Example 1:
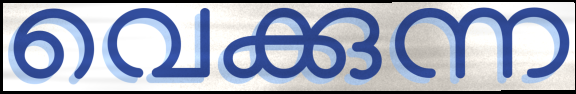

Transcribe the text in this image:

വെക്കുന്ന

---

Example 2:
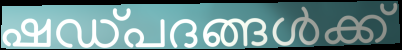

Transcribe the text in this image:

ഷഡ്പദങ്ങൾക്ക്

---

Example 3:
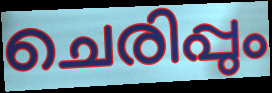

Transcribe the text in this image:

ചെരിപ്പും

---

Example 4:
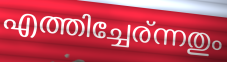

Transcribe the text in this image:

എത്തിച്ചേര്ന്നതും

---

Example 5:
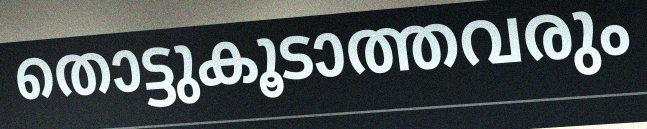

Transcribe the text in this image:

തൊട്ടുകൂടാത്തവരും